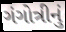
ગંગોત્રીનું